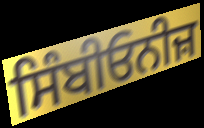
ਸਿੰਬੀਓਨੀਜ਼